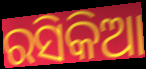
ରସିକିଆ